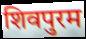
शिवपुरम